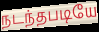
நடந்தபடியே